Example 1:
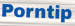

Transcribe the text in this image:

Porntip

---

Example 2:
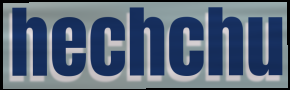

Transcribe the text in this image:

hechchu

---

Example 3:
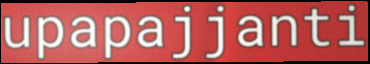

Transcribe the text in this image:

upapajjanti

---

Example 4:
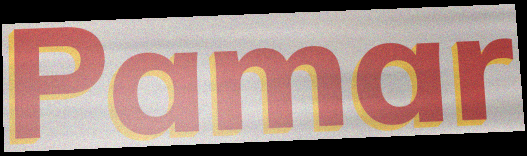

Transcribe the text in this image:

Pamar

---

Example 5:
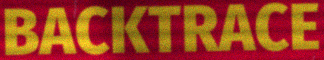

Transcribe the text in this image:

BACKTRACE